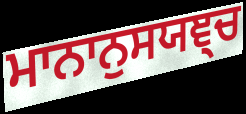
ਮਾਨਾਨੁਸਯਞ੍ਚ